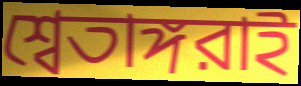
শ্বেতাঙ্গরাই